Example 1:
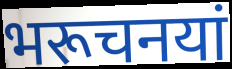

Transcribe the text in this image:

भरूचनयां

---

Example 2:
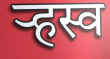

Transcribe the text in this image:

र्‍हस्व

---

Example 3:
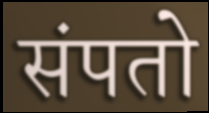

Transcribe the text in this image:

संपतो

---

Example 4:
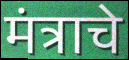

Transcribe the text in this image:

मंत्राचे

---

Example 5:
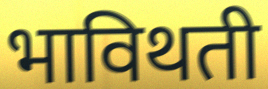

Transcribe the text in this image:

भाविथती